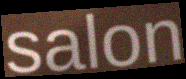
salon